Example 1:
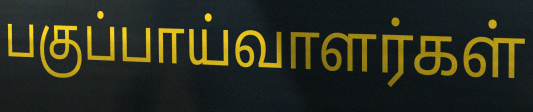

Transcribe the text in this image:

பகுப்பாய்வாளர்கள்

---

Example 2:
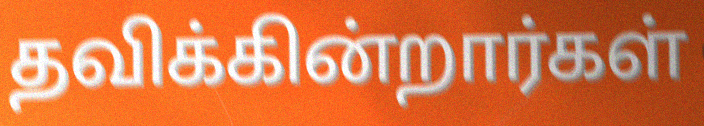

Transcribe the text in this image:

தவிக்கின்றார்கள்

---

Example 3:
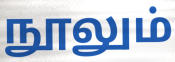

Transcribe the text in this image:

நூலும்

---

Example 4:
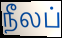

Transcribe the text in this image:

நீலப்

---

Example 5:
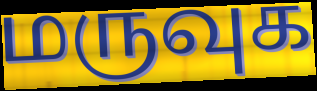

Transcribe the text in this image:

மருவுக